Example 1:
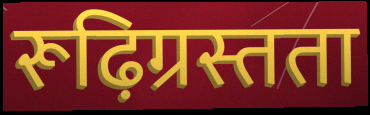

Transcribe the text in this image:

रूढ़िग्रस्तता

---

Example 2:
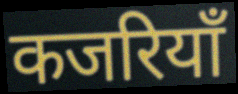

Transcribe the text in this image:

कजरियाँ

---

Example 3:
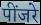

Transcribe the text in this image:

पींजरे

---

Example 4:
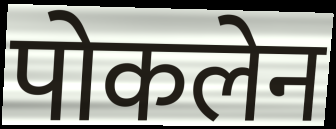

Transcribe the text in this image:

पोकलेन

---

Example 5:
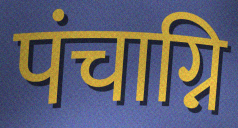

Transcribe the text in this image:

पंचाग्नि